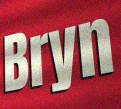
Bryn